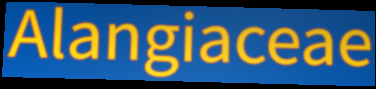
Alangiaceae